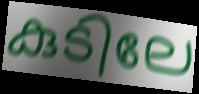
കുടിലേ